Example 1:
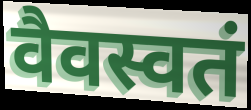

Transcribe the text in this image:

वैवस्वतं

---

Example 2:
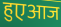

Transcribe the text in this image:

हुएआज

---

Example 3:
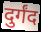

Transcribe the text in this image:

दुर्गंद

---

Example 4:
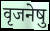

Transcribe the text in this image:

वृजनेषु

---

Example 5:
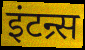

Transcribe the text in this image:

इंटन्र्स